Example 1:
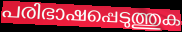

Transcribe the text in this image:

പരിഭാഷപ്പെടുത്തുക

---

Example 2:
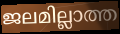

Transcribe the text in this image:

ജലമില്ലാത്ത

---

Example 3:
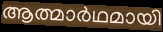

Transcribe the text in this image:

ആത്മാർഥമായി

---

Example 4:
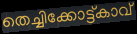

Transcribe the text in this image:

തെച്ചിക്കോട്ട്കാവ്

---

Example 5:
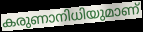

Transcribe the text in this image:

കരുണാനിധിയുമാണ്